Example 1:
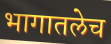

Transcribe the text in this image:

भागातलेच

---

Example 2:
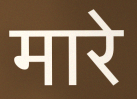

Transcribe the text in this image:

मारे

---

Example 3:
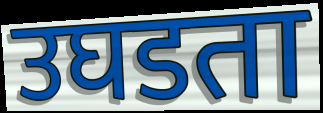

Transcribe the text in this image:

उघडता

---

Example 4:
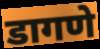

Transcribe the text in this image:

डागणे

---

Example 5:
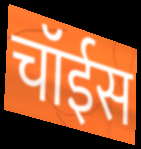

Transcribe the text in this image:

चॉईस